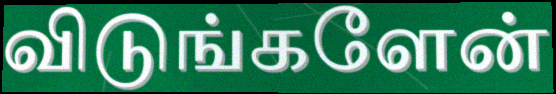
விடுங்களேன்